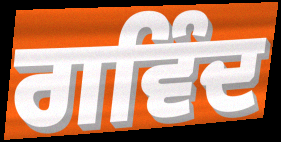
ਗਵਿੰਦ